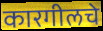
कारगीलचे